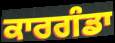
ਕਾਰਗੰਡਾ